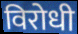
विरोधी